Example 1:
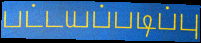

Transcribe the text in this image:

பட்டயப்படிப்பு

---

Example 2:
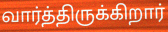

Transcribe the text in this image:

வார்த்திருக்கிறார்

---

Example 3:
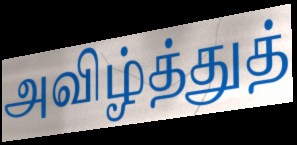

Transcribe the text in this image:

அவிழ்த்துத்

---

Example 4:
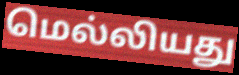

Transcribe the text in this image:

மெல்லியது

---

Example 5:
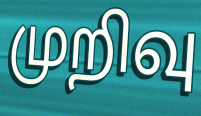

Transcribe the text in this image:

முறிவு